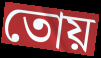
তোয়